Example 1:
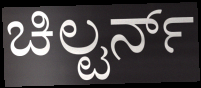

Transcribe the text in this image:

ಚಿಲ್ಟರ್ನ್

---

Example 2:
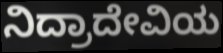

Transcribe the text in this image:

ನಿದ್ರಾದೇವಿಯ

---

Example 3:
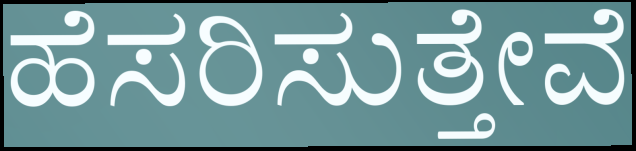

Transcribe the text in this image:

ಹೆಸರಿಸುತ್ತೇವೆ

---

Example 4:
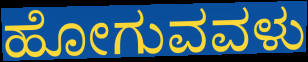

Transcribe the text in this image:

ಹೋಗುವವಳು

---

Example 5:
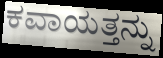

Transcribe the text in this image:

ಕವಾಯತ್ತನ್ನು